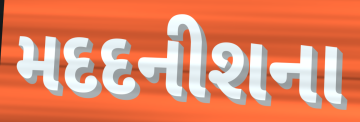
મદદનીશના